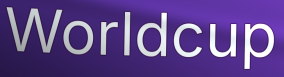
Worldcup